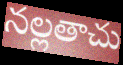
నల్లతాచు